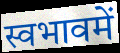
स्वभावमें